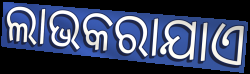
ଲାଭକରାଯାଏ